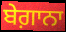
ਬੇਗ਼ਾਨਾ